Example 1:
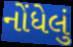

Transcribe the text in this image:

નોંધેલું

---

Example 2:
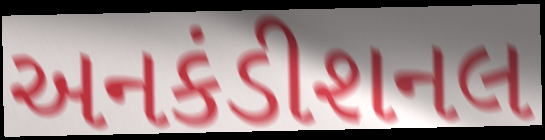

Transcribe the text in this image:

અનકંડીશનલ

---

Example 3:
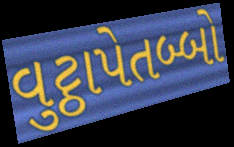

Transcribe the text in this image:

વુટ્ઠાપેતબ્બો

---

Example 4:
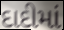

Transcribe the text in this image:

દાદીમાં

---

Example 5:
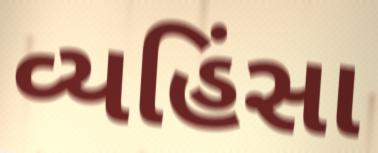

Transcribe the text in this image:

વ્યહિંસા